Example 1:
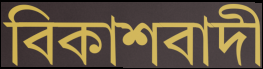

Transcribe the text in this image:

বিকাশবাদী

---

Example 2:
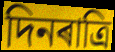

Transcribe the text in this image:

দিনৰাত্ৰি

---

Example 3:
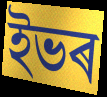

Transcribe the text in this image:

ইভৰ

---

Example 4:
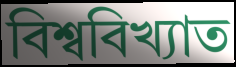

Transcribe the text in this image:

বিশ্ববিখ্যাত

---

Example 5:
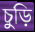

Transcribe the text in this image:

চুড়ি